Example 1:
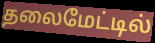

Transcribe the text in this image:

தலைமேட்டில்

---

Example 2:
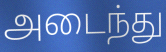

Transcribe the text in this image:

அடைந்து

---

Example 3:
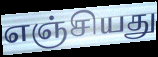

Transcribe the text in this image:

எஞ்சியது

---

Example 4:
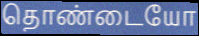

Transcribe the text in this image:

தொண்டையோ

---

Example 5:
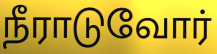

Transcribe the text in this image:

நீராடுவோர்